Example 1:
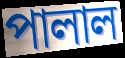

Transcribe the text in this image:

পালাল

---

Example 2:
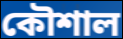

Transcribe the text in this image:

কৌশাল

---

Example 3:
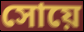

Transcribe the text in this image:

সোয়ে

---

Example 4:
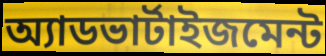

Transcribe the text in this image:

অ্যাডভার্টাইজমেন্ট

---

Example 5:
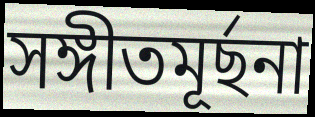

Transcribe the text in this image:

সঙ্গীতমূর্ছনা